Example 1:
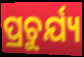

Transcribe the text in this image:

ପ୍ରଚୁର୍ଯ୍ୟ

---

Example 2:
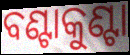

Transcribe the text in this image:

ବଣ୍ଟାକୁଣ୍ଟା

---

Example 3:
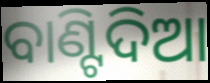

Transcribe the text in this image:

ବାଣ୍ଟିଦିଆ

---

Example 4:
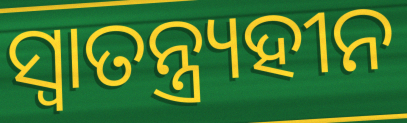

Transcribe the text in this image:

ସ୍ଵାତନ୍ତ୍ର୍ୟହୀନ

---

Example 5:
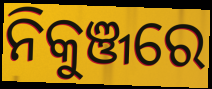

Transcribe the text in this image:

ନିକୁଞ୍ଜରେ